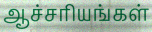
ஆச்சரியங்கள்